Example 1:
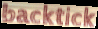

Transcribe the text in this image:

backtick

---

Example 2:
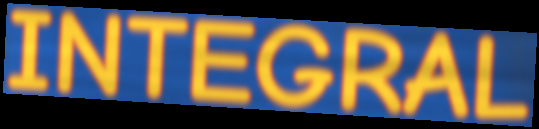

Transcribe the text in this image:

INTEGRAL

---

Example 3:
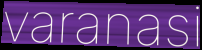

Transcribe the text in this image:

varanasi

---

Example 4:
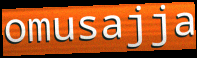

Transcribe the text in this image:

omusajja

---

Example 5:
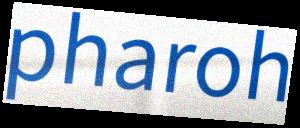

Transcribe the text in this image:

pharoh